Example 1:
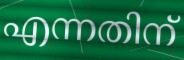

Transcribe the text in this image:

എന്നതിന്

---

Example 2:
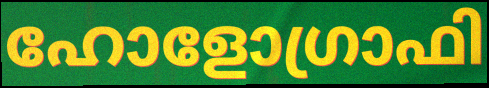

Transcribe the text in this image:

ഹോളോഗ്രാഫി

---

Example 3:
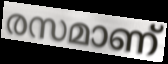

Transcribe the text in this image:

രസമാണ്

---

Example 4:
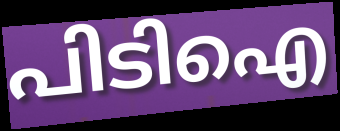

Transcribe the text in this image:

പിടിഐ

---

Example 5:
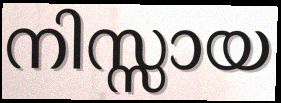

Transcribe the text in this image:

നിസ്സായ